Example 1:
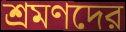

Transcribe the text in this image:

শ্রমণদের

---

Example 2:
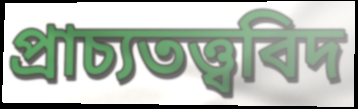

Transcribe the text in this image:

প্রাচ্যতত্ত্ববিদ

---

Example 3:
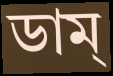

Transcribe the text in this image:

ডাম্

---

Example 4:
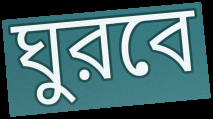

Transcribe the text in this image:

ঘুরবে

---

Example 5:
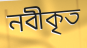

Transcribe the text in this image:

নবীকৃত